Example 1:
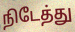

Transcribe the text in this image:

நிடேத்து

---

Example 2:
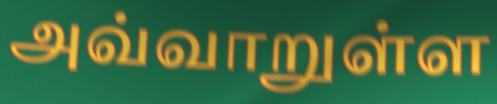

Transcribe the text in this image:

அவ்வாறுள்ள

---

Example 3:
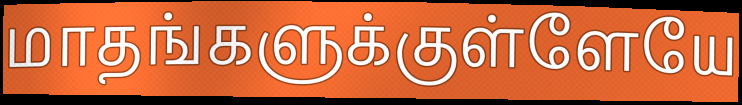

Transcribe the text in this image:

மாதங்களுக்குள்ளேயே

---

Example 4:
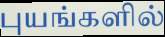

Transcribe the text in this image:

புயங்களில்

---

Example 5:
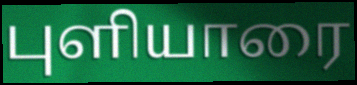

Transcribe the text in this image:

புளியாரை